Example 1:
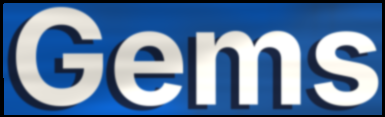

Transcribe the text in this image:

Gems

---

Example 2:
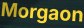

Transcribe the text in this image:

Morgaon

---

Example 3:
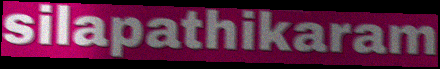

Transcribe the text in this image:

silapathikaram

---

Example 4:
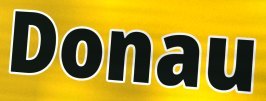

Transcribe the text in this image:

Donau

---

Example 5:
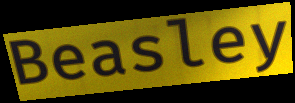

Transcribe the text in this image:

Beasley